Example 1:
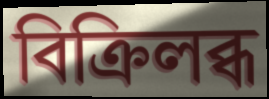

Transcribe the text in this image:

বিক্রিলব্ধ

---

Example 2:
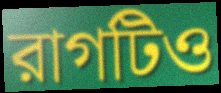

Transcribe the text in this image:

রাগটিও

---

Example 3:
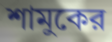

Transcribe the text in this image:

শামুকের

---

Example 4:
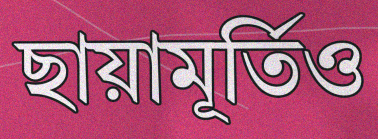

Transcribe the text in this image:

ছায়ামূর্তিও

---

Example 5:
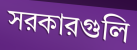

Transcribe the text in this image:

সরকারগুলি